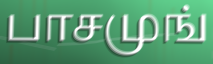
பாசமுங்